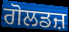
ਗੋਲਡਜ਼